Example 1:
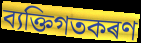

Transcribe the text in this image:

ব্যক্তিগতকৰণ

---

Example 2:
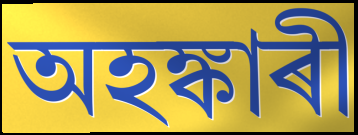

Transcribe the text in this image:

অহঙ্কাৰী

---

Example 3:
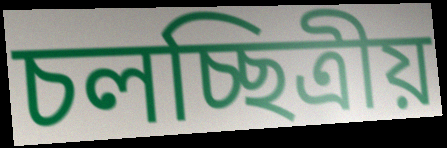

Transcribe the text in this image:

চলচ্ছিত্ৰীয়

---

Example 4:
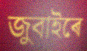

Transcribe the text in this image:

জুবাইৰে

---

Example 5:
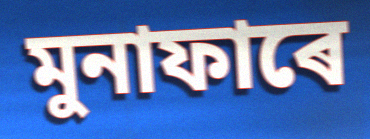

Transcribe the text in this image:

মুনাফাৰে